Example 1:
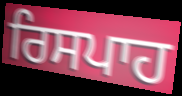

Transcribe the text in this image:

ਰਿਸਪਾਹ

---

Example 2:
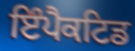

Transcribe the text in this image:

ਇੰਪੈਕਟਿਡ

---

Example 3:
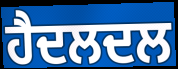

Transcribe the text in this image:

ਹੈਦਲਦਲ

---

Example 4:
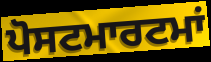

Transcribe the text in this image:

ਪੋਸਟਮਾਰਟਮਾਂ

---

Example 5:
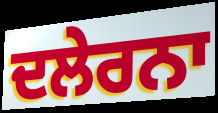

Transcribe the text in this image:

ਦਲੇਰਨਾ